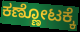
ಕಣ್ಣೋಟಕ್ಕೆ